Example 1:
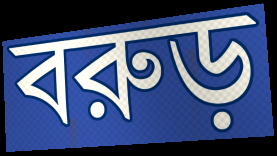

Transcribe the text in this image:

বরুড়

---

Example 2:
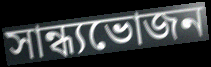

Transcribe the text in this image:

সান্ধ্যভোজন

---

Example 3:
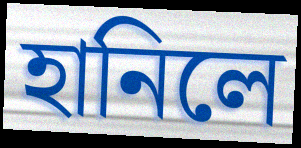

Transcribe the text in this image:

হানিলে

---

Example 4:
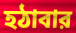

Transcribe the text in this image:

হঠাবার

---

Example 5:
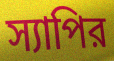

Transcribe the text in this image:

স্যাপির